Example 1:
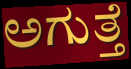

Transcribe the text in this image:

ಅಗುತ್ತೆ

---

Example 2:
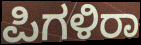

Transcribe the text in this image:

ಪಿಗಳಿರಾ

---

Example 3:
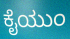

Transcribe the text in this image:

ಕೈಯುಂ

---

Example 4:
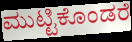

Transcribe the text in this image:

ಮುಟ್ಟಿಕೊಂಡರೆ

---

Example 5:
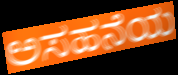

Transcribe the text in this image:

ಅಸಹನೆಯ